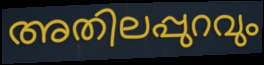
അതിലപ്പുറവും